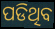
ପଡିଥିବ